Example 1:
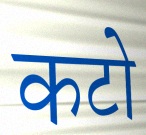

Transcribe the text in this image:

कटो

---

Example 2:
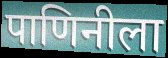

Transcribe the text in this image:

पाणिनीला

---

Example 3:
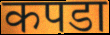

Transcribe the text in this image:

कपडा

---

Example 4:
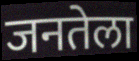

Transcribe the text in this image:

जनतेला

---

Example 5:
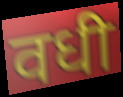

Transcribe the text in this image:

वधी